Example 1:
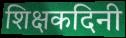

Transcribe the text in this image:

शिक्षकदिनी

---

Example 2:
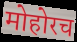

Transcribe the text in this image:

मोहोरच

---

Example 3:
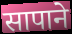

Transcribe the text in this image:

सापाने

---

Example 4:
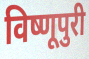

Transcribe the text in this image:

विष्णूपुरी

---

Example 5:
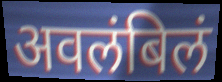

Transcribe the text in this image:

अवलंबिलं